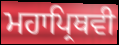
ਮਹਾਪ੍ਰਿਥਵੀ